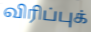
விரிப்புக்